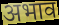
अभाव